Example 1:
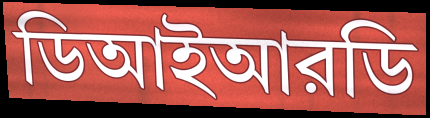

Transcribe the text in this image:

ডিআইআরডি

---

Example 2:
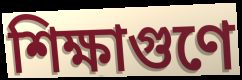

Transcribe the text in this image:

শিক্ষাগুণে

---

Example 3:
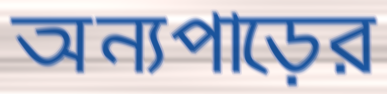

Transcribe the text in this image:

অন্যপাড়ের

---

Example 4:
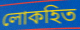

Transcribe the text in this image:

লোকহিত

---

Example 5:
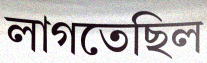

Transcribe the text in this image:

লাগতেছিল